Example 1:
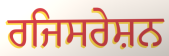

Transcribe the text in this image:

ਰਜਿਸਰੇਸ਼ਨ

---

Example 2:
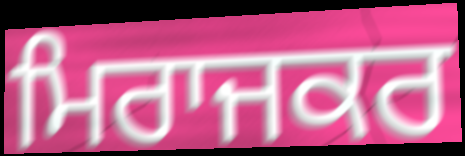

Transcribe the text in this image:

ਮਿਰਾਜਕਰ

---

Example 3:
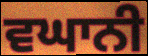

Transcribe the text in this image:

ਵਘਾਨੀ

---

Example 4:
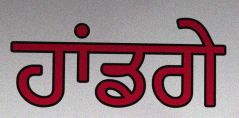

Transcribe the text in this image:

ਹਾਂਡਗੇ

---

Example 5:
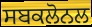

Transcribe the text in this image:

ਸਬਕਲੋਨਲ